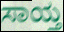
ಸಾಯ್ತ